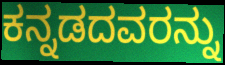
ಕನ್ನಡದವರನ್ನು